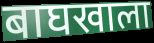
बाघखाला